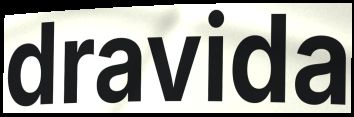
dravida